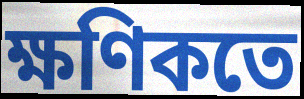
ক্ষণিকতে